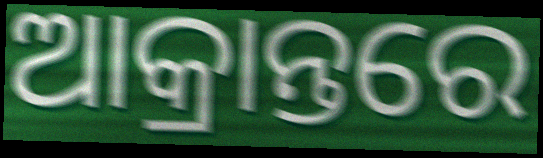
ଆକ୍ରାନ୍ତରେ